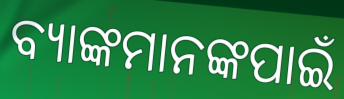
ବ୍ୟାଙ୍କମାନଙ୍କପାଇଁ